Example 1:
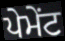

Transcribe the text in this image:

ਪੇਮੇਂਟ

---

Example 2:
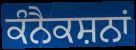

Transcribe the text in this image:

ਕੰਨੈਕਸ਼ਨਾਂ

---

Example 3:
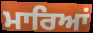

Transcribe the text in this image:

ਮਾਰਿਆਂ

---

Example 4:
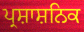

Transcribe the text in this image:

ਪ੍ਰਸ਼ਾਸ਼ਨਿਕ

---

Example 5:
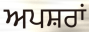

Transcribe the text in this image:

ਅਪਸ਼ਰਾਂ